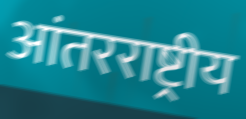
आंतरराष्ट्रीय